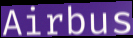
Airbus